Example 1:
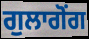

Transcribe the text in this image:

ਗੁਲਾਗੋਂਗ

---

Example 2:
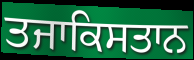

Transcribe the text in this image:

ਤਜਾਕਿਸਤਾਨ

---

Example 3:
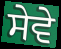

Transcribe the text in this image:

ਸੇਵੇ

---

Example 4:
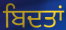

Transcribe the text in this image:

ਬਿਦਤਾਂ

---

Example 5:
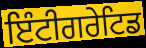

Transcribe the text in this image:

ਇੰਟੀਗਰੇਟਿਡ